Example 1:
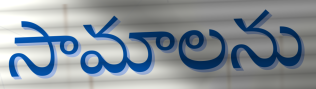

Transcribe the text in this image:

సామాలను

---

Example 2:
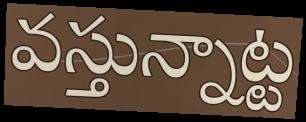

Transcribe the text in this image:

వస్తున్నాట్ట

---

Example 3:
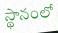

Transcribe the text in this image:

స్థానంలో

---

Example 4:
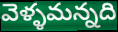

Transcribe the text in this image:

వెళ్ళమన్నది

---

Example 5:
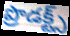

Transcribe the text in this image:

ప్రొడక్ట్స్